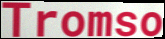
Tromso